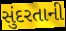
સુંદરતાની